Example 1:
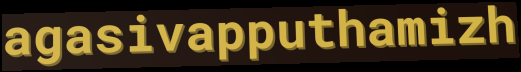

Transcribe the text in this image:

agasivapputhamizh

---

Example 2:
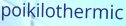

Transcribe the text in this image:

poikilothermic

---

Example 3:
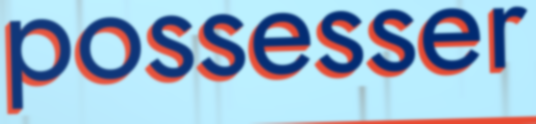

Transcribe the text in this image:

possesser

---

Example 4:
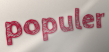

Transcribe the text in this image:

populer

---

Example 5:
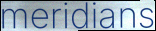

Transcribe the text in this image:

meridians